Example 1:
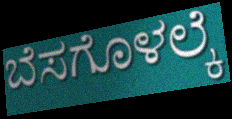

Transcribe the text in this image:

ಬೆಸಗೊಳಲ್ಕೆ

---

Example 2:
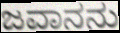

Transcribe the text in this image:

ಜವಾನನು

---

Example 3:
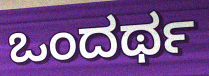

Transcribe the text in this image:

ಒಂದರ್ಥ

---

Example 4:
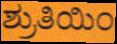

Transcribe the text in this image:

ಶ್ರುತಿಯಿಂ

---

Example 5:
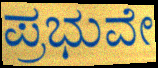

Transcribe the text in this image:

ಪ್ರಭುವೇ